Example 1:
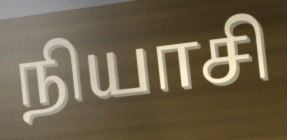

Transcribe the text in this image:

நியாசி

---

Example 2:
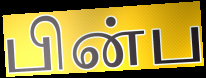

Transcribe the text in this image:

பின்ப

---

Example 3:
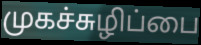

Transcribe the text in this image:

முகச்சுழிப்பை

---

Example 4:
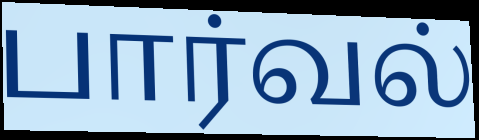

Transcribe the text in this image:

பார்வல்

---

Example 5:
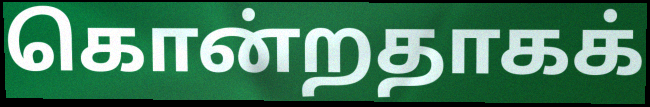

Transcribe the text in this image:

கொன்றதாகக்